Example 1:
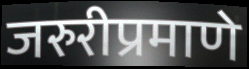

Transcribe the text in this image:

जरुरीप्रमाणे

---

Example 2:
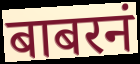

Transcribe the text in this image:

बाबरनं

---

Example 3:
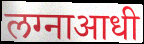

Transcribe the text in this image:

लग्नाआधी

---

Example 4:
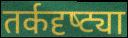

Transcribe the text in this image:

तर्कदृष्ट्या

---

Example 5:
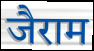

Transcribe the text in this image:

जैराम